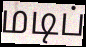
மடிப்